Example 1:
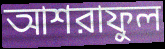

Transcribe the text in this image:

আশরাফুল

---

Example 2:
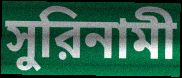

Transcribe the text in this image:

সুরিনামী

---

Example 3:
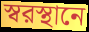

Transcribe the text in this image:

স্বরস্থানে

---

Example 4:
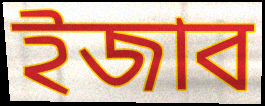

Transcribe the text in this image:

ইজাব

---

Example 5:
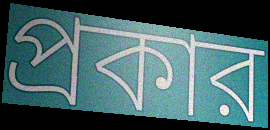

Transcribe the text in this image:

প্রকার